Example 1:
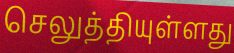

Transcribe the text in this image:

செலுத்தியுள்ளது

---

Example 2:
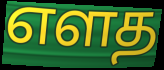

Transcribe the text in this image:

எளத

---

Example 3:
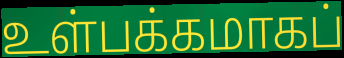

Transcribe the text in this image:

உள்பக்கமாகப்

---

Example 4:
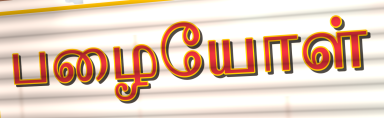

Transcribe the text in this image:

பழையோள்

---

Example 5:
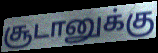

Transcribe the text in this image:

சூடானுக்கு